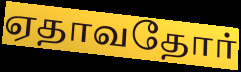
ஏதாவதோர்